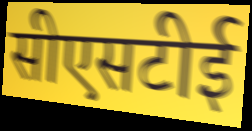
सीएसटीई